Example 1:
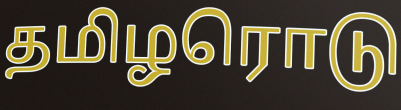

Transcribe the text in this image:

தமிழரொடு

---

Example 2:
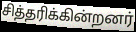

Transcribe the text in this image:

சித்தரிக்கின்றனர்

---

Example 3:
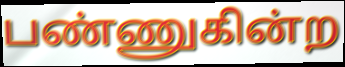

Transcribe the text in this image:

பண்ணுகின்ற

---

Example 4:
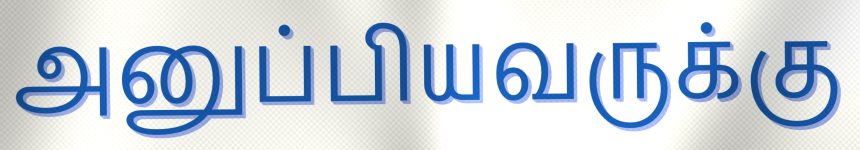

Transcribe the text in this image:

அனுப்பியவருக்கு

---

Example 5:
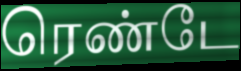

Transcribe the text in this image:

ரெண்டே